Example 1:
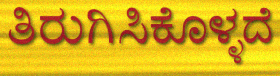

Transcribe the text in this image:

ತಿರುಗಿಸಿಕೊಳ್ಳದೆ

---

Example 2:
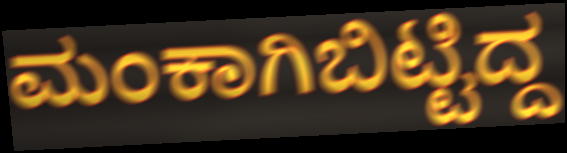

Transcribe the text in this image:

ಮಂಕಾಗಿಬಿಟ್ಟಿದ್ದ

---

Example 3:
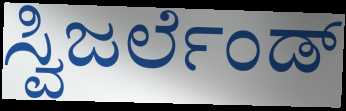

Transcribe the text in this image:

ಸ್ವಿಜರ್ಲೆಂಡ್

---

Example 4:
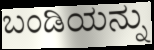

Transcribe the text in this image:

ಬಂಡಿಯನ್ನು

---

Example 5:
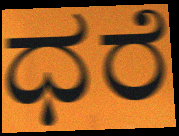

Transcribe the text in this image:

ಧರೆ